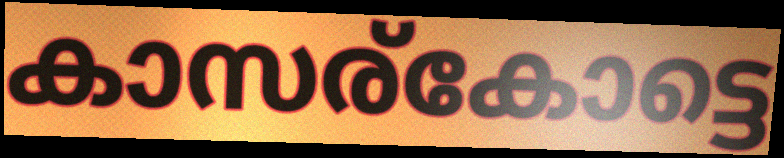
കാസര്കോട്ടെ